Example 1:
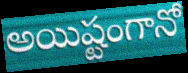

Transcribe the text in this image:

అయిష్టంగానో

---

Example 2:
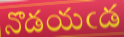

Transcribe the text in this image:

నొడయఁడ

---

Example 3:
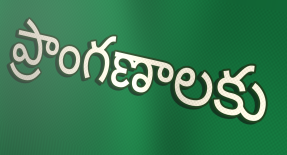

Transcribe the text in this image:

ప్రాంగణాలకు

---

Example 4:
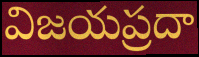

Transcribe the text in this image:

విజయప్రదా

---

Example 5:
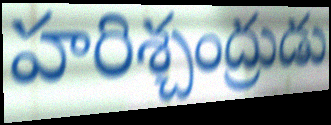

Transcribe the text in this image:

హరిశ్చంద్రుడు